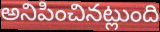
అనిపించినట్లుంది